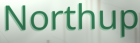
Northup